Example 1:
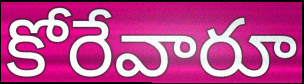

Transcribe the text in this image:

కోరేవారూ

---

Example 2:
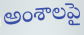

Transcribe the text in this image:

అంశాలపై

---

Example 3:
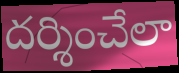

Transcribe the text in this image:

దర్శించేలా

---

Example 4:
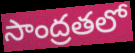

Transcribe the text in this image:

సాంద్రతలో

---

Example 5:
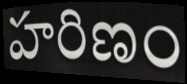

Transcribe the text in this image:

హరిణం